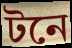
টনে